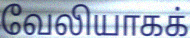
வேலியாகக்